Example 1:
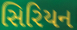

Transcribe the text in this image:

સિરિયન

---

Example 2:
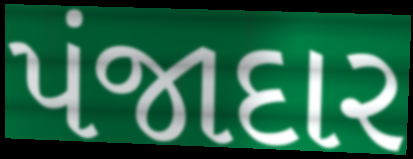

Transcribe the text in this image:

પંજાદાર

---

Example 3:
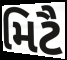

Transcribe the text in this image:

મિટૈ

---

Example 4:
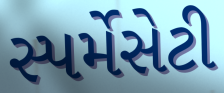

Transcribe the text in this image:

સ્પર્મેસેટી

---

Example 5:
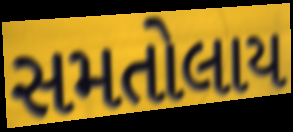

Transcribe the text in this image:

સમતોલાય